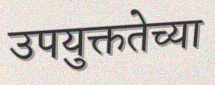
उपयुक्ततेच्या